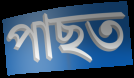
পাছত